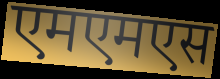
एमएमएस